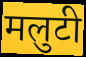
मलुटी